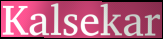
Kalsekar